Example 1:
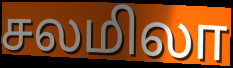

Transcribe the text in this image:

சலமிலா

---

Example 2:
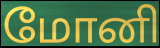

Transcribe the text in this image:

மோனி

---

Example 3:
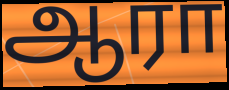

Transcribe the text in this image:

ஆரா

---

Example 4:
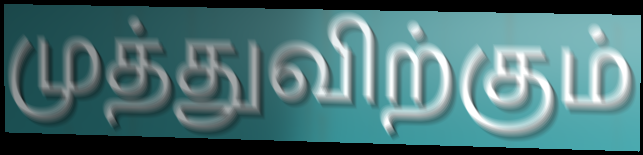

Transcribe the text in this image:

முத்துவிற்கும்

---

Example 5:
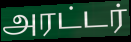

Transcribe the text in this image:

அரட்டர்